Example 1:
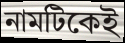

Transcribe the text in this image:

নামটিকেই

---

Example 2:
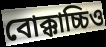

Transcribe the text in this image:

বোক্কাচ্চিও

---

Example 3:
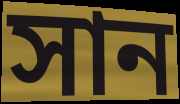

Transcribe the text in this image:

সান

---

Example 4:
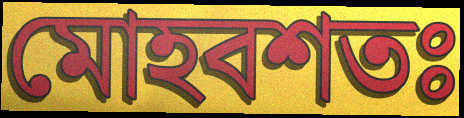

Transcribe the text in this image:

মোহবশতঃ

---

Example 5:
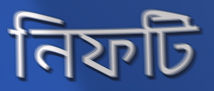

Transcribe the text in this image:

নিফটি